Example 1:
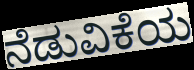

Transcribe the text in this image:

ನೆಡುವಿಕೆಯ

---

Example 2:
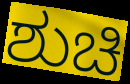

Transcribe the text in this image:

ಶುಚಿ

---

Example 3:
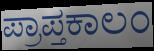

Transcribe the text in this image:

ಪ್ರಾಪ್ತಕಾಲಂ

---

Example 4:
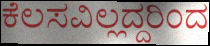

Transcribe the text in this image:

ಕೆಲಸವಿಲ್ಲದ್ದರಿಂದ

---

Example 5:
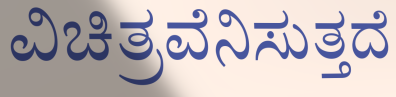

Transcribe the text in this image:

ವಿಚಿತ್ರವೆನಿಸುತ್ತದೆ